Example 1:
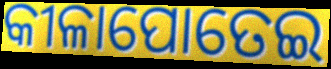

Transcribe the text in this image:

କୀଳାପୋତେଇ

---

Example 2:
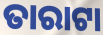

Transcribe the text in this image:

ତାରାଟା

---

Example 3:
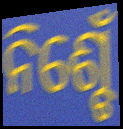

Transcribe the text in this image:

ନିଶ୍ଚେଁ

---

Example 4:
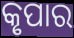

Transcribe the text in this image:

କୃପାର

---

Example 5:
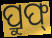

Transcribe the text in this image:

ପ୍ରୁଫ୍